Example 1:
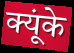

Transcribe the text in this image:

क्यूंके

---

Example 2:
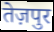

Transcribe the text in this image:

तेज़पुर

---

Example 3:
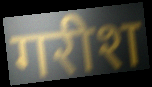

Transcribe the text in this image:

गरीश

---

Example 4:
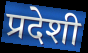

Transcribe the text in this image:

प्रदेशी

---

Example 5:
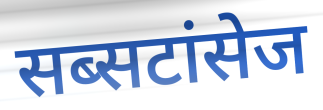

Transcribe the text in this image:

सब्सटांसेज